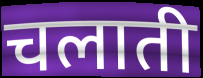
चलाती